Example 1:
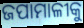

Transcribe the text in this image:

ଜପାମାଳୀକୁ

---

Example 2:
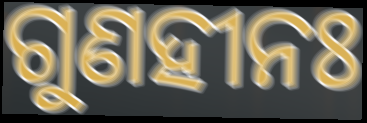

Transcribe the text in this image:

ଗୁଣହୀନଃ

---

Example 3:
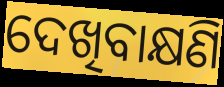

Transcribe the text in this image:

ଦେଖିବାକ୍ଷଣି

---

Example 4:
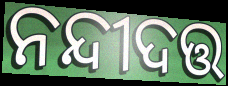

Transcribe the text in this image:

ନନ୍ଦୀଦତ୍ତ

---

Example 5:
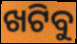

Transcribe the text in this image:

ଖଟିବୁ